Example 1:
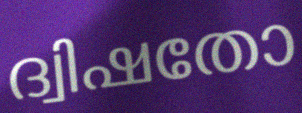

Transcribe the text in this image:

ദ്വിഷതോ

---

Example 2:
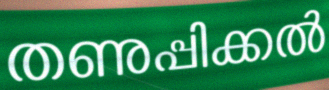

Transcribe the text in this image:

തണുപ്പിക്കൽ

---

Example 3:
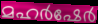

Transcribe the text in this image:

മഹർഷേർ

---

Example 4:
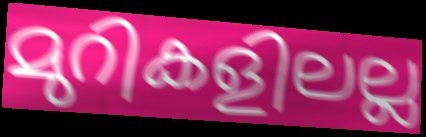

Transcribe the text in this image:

മുറികളിലല്ല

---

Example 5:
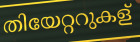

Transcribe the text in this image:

തിയേറ്ററുകള്